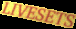
LIVESETS